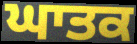
ਘਾਤਕ